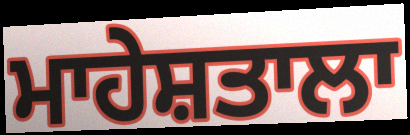
ਮਾਹੇਸ਼ਤਾਲਾ